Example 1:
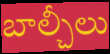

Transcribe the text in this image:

బాల్చీలు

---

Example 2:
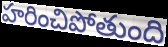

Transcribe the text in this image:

హరించిపోతుంది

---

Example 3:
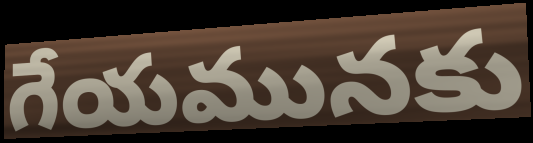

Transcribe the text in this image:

గేయమునకు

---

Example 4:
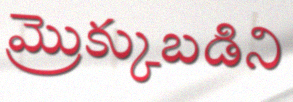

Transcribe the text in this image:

మ్రొక్కుబడిని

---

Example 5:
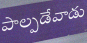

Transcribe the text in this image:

పాల్పడేవాడు